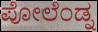
ಪೋಲೆಂಡ್ನ